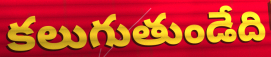
కలుగుతుండేది